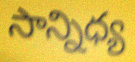
సాన్నిధ్య